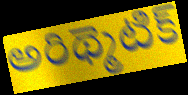
అరిథ్మెటిక్